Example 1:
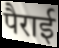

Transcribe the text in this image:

पैराई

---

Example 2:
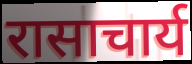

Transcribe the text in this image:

रासाचार्य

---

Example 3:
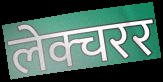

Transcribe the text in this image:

लेक्‍चरर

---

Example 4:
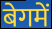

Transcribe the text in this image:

बेगमें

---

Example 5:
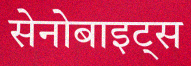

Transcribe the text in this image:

सेनोबाइट्स